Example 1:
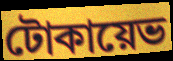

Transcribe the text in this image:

টোকায়েভ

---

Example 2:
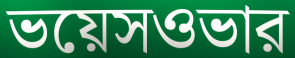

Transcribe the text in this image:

ভয়েসওভার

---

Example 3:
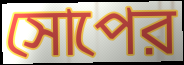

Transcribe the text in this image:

সোপের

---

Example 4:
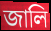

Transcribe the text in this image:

জালি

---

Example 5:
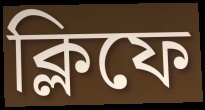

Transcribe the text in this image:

ক্লিফে